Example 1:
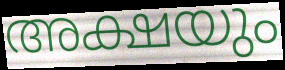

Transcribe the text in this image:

അക്ഷയും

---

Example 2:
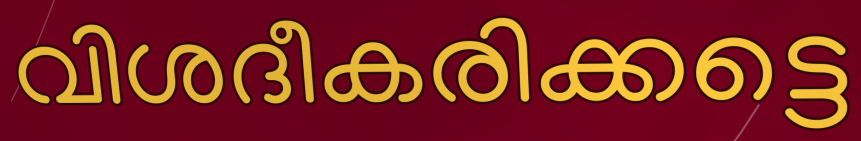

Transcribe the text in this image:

വിശദീകരിക്കട്ടെ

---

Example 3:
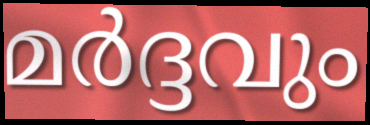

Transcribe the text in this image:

മർദ്ദവും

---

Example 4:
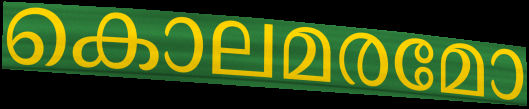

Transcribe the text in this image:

കൊലമരമോ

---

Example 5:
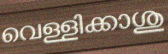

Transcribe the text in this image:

വെള്ളിക്കാശു